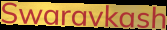
Swaravkash